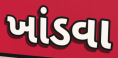
ખાંડવા